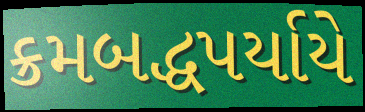
ક્રમબદ્ધપર્યાયે